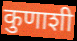
कुणाशी